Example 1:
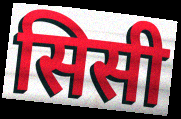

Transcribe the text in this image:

सिसी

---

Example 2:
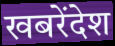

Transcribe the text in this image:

खबरेंदेश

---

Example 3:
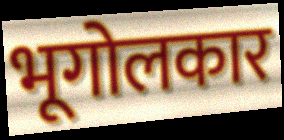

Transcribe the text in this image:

भूगोलकार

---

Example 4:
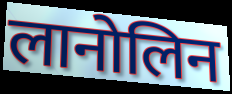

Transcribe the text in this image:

लानोलिन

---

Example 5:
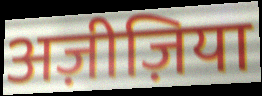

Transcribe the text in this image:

अज़ीज़िया